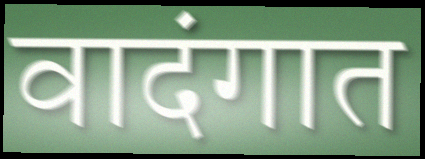
वादंगात